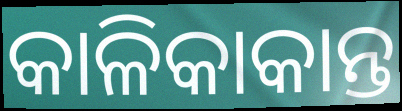
କାଳିକାକାନ୍ତ